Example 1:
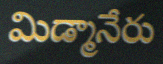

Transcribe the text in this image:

మిడ్మానేరు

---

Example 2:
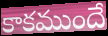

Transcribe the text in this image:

కాకముందే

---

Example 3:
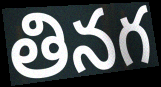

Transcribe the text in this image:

తినగ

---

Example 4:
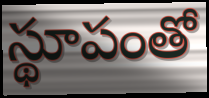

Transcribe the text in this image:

స్థూపంతో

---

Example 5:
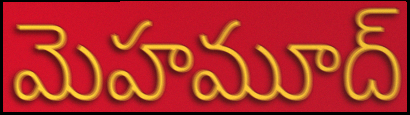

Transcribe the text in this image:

మెహమూద్